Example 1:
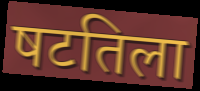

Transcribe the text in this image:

षटतिला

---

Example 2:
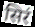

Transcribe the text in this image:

सिरं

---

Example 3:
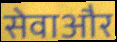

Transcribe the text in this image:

सेवाऔर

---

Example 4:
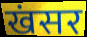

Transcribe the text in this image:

खंसर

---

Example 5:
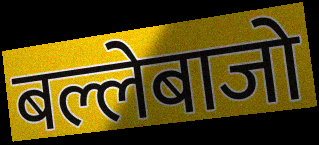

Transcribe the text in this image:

बल्लेबाजो